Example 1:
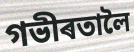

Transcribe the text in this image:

গভীৰতালৈ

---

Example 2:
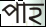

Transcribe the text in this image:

পাহ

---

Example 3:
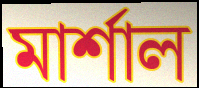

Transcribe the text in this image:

মাৰ্শাল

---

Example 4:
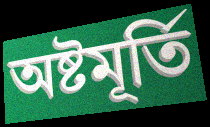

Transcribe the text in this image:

অষ্টমূৰ্তি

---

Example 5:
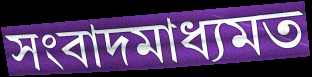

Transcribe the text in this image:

সংবাদমাধ্যমত